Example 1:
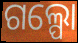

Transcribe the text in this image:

ଗଲ୍ପୋ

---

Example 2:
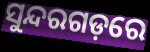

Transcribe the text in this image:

ସୁନ୍ଦରଗଡ଼ରେ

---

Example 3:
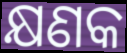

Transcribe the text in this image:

କ୍ଷଣକ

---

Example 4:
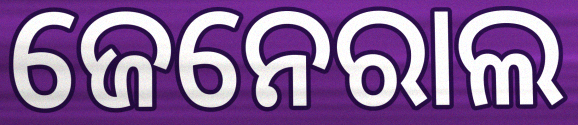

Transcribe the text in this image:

ଜେନେରାଲ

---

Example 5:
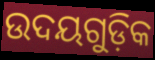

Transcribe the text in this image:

ଉଦୟଗୁଡ଼ିକ